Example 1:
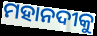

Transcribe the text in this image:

ମହାନଦୀକୁ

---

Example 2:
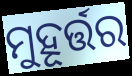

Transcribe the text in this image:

ମୁହୂର୍ତ୍ତର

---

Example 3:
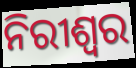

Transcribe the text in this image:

ନିରୀଶ୍ୱର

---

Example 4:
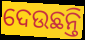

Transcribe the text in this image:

ଦେଉଛନ୍ତି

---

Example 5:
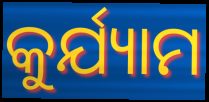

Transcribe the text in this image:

କୁର୍ଯ୍ୟାମ